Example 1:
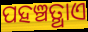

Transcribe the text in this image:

ପହଞ୍ଚତ୍ଥାଏ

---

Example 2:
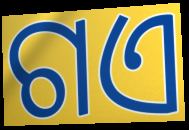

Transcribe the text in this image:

ଗଏ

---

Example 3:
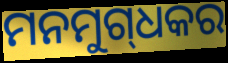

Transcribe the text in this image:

ମନମୁଗ୍‌ଧକର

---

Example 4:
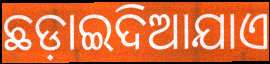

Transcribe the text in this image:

ଛଡ଼ାଇଦିଆଯାଏ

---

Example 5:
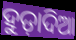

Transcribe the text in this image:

ହୁଡ଼ାଦିଆ